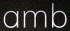
amb